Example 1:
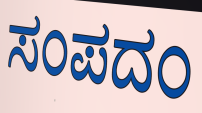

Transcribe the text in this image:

ಸಂಪದಂ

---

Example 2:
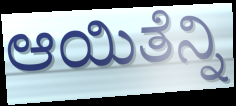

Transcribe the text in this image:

ಆಯಿತೆನ್ನಿ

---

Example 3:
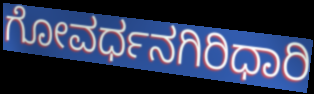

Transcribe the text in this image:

ಗೋವರ್ಧನಗಿರಿಧಾರಿ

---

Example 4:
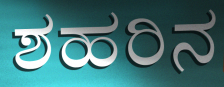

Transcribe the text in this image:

ಶಹರಿನ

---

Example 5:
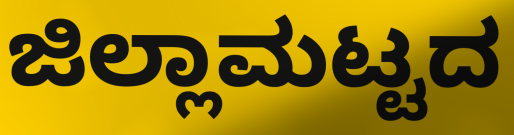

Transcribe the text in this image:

ಜಿಲ್ಲಾಮಟ್ಟದ